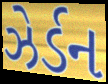
ઝેર્ડન